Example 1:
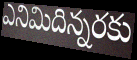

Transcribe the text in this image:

ఎనిమిదిన్నరకు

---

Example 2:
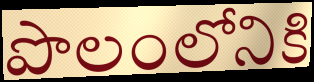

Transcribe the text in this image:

పొలంలోనికి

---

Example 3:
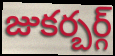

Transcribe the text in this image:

జుకర్బర్గ్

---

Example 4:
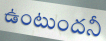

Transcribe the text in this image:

ఉంటుందనీ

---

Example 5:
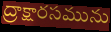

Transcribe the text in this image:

ద్రాక్షారసమును